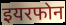
इयरफोन